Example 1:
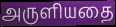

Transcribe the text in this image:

அருளியதை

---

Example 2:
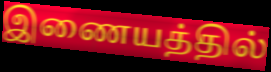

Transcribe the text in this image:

இணையத்தில்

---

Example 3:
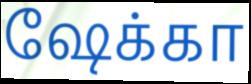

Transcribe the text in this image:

ஷேக்கா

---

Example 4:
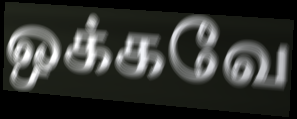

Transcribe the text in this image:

ஒக்கவே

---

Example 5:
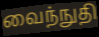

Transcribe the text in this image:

வைந்நுதி